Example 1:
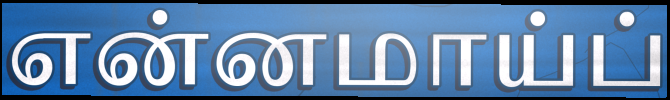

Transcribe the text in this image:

என்னமாய்ப்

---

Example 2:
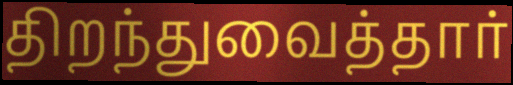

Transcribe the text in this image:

திறந்துவைத்தார்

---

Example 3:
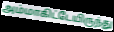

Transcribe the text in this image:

அம்மாகிட்டேயிருந்து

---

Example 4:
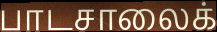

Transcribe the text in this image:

பாடசாலைக்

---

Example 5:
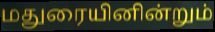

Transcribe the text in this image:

மதுரையினின்றும்